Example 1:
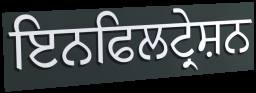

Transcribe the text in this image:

ਇਨਫਿਲਟ੍ਰੇਸ਼ਨ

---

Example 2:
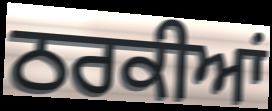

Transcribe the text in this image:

ਠਰਕੀਆਂ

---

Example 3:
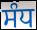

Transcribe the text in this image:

ਸੰਧ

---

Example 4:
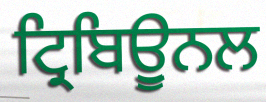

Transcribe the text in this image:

ਟ੍ਰਿਬਿਊੁਨਲ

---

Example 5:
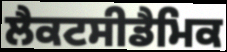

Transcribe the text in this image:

ਲੈਕਟਸੀਡੈਮਿਕ